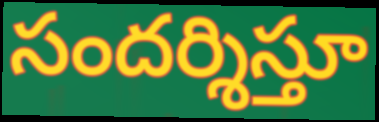
సందర్శిస్తూ